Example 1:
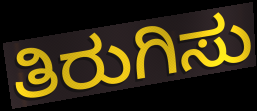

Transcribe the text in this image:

ತಿರುಗಿಸು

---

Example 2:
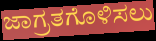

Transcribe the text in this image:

ಜಾಗ್ರತಗೊಳಿಸಲು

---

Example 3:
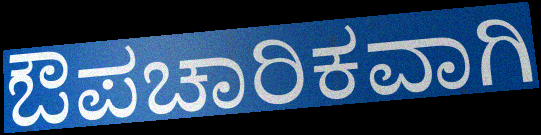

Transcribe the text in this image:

ಔಪಚಾರಿಕವಾಗಿ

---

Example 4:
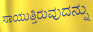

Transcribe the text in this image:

ಸಾಯುತ್ತಿರುವುದನ್ನು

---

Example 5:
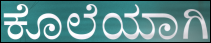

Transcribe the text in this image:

ಕೊಲೆಯಾಗಿ